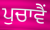
ਪੁਚਾਵੈਂ